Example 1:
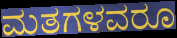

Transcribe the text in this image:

ಮತಗಳವರೂ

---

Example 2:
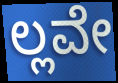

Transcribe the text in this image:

ಲ್ಲವೇ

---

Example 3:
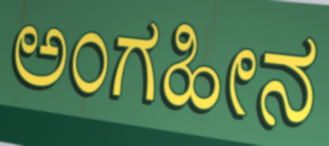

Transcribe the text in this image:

ಅಂಗಹೀನ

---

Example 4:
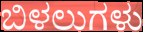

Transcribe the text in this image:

ಬಿಳಲುಗಳು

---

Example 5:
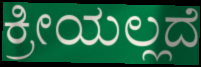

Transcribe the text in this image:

ಕ್ರೀಯಲ್ಲದೆ